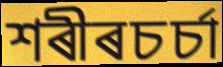
শৰীৰচৰ্চা